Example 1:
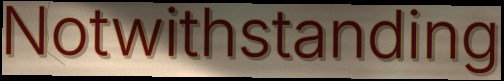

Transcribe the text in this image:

Notwithstanding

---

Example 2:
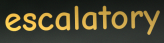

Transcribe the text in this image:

escalatory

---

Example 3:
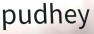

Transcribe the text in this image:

pudhey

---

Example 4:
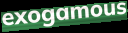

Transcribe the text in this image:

exogamous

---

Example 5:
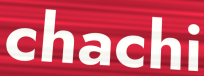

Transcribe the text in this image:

chachi